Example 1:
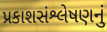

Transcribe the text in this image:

પ્રકાશસંશ્લેષણનું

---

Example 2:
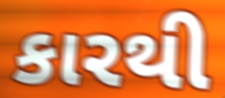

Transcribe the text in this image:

કારથી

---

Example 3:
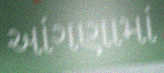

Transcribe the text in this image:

આંગણામાં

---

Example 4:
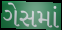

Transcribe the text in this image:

ગેસમાં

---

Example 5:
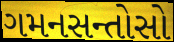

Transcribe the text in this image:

ગમનસન્તોસો